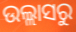
ଉଲ୍ଲାସରୁ